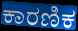
ಕಾರಣಿಕ